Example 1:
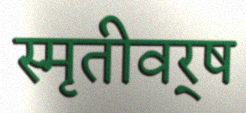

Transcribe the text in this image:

स्मृतीवर्ष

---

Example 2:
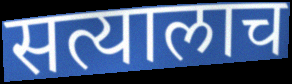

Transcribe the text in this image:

सत्यालाच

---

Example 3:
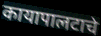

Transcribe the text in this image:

कायापालटाचे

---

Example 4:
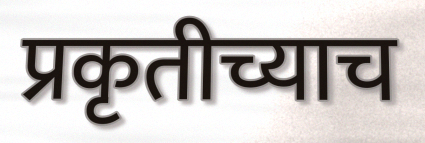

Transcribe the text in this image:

प्रकृतीच्याच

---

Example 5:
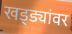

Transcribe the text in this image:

खड्ड्यांवर